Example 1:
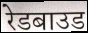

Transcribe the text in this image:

रेडबाउड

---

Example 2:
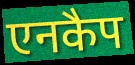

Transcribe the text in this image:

एनकैप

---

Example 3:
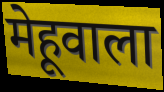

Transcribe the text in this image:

मेहूवाला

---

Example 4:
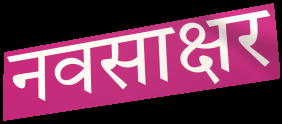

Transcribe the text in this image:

नवसाक्षर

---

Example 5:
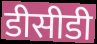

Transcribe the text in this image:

डीसीडी